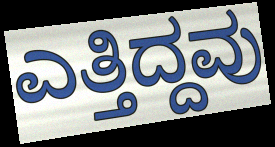
ಎತ್ತಿದ್ದವು